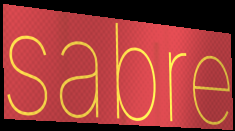
sabre